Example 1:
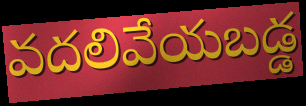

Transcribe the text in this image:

వదలివేయబడ్డ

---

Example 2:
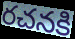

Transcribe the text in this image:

రచనకి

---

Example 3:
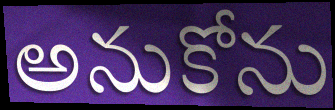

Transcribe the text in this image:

అనుకోను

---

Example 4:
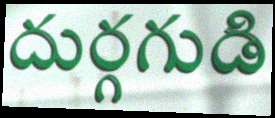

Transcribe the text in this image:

దుర్గగుడి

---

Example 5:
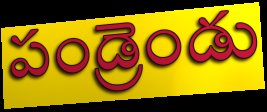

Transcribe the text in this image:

పండ్రెండు